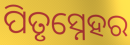
ପିତୃସ୍ନେହର